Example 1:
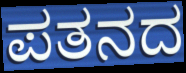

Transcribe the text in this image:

ಪತನದ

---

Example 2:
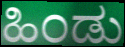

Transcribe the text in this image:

ಹಿಂಡು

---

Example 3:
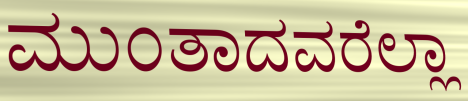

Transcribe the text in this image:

ಮುಂತಾದವರೆಲ್ಲಾ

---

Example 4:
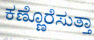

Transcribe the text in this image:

ಕಣ್ಣೊರೆಸುತ್ತಾ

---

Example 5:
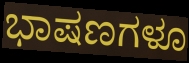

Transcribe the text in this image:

ಭಾಷಣಗಳೂ